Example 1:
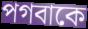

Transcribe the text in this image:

পগবাকে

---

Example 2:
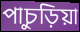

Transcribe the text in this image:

পাচুড়িয়া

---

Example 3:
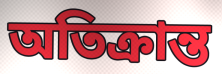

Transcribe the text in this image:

অতিক্রান্ত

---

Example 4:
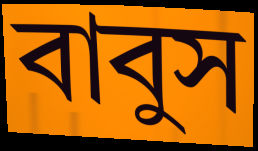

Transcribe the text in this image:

বাবুস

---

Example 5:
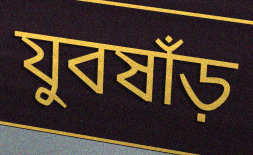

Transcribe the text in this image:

যুবষাঁড়